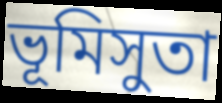
ভূমিসুতা